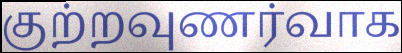
குற்றவுணர்வாக